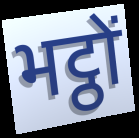
भट्ठों